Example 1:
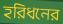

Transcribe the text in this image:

হরিধনের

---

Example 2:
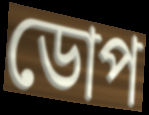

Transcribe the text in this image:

ডোপ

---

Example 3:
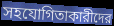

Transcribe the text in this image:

সহযোগিতাকারীদের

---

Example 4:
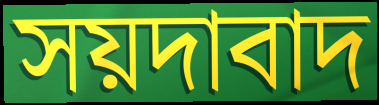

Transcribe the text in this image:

সয়দাবাদ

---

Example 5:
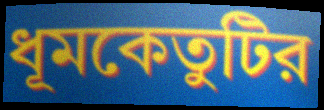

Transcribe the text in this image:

ধূমকেতুটির